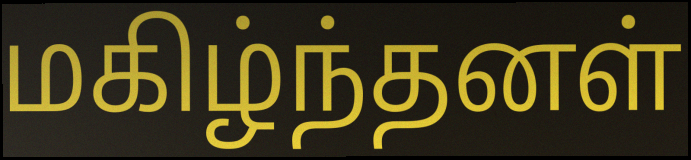
மகிழ்ந்தனள்